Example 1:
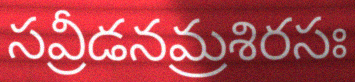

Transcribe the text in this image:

సవ్రీడనమ్రశిరసః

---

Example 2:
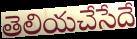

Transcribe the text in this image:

తెలియచేసేదే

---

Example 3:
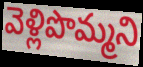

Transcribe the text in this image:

వెళ్లిపొమ్మని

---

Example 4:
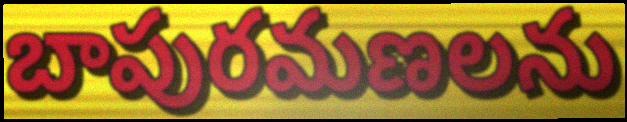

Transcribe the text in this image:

బాపురమణలను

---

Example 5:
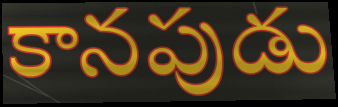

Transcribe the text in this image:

కానపుడు